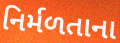
નિર્મળતાના